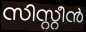
സിസ്റ്റീൻ